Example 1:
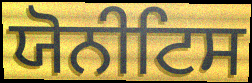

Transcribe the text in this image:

ਯੋਨੀਟਿਸ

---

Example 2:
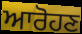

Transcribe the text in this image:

ਆਰੋਹਣ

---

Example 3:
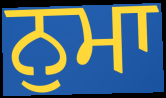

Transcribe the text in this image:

ਨੁਮਾ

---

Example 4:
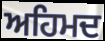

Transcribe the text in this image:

ਅਹਿਮਦ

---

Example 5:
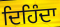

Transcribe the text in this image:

ਦਿਹਿੰਦਾ